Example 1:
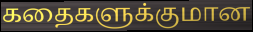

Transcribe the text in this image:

கதைகளுக்குமான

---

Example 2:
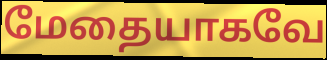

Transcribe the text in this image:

மேதையாகவே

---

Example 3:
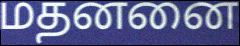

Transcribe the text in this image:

மதனனை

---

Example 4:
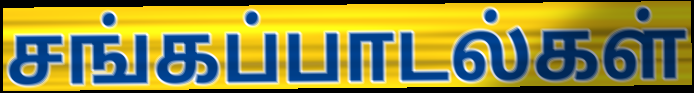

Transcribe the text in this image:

சங்கப்பாடல்கள்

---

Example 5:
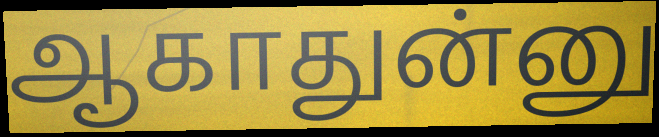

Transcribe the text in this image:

ஆகாதுன்னு